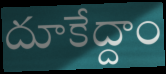
దూకేద్దాం